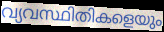
വ്യവസ്ഥിതികളെയും